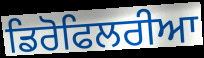
ਡਿਰੋਫਿਲਰੀਆ